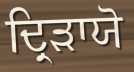
ਦ੍ਰਿੜਾਯੋ